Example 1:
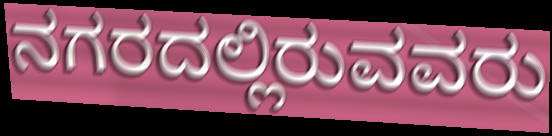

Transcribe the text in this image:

ನಗರದಲ್ಲಿರುವವರು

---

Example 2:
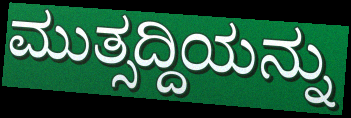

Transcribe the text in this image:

ಮುತ್ಸದ್ದಿಯನ್ನು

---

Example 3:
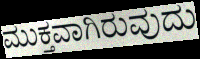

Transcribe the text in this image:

ಮುಕ್ತವಾಗಿರುವುದು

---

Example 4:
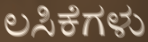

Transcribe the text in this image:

ಲಸಿಕೆಗಳು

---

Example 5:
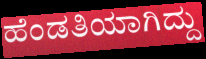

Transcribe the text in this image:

ಹೆಂಡತಿಯಾಗಿದ್ದು